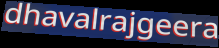
dhavalrajgeera